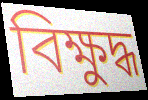
বিক্ষুদ্ধ